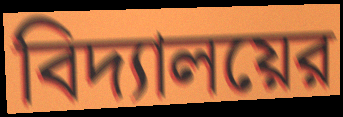
বিদ্যালয়ের